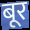
बूर